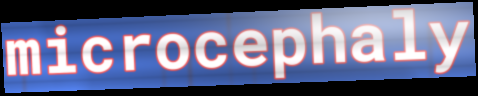
microcephaly